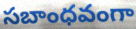
సబాంధవంగా